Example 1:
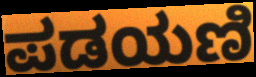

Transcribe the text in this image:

ಪಡಯಣಿ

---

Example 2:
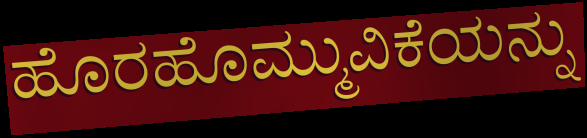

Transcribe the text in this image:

ಹೊರಹೊಮ್ಮುವಿಕೆಯನ್ನು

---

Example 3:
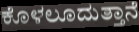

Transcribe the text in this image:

ಕೊಳಲೂದುತ್ತಾನೆ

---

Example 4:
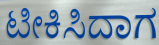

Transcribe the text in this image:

ಟೀಕಿಸಿದಾಗ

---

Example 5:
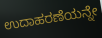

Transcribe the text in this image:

ಉದಾಹರಣೆಯನ್ನೇ